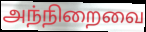
அந்நிறைவை